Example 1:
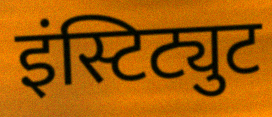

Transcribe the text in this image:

इंस्टिट्युट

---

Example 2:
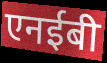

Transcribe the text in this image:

एनईबी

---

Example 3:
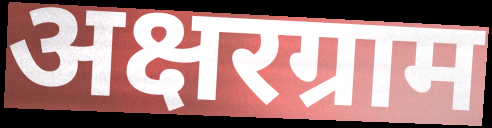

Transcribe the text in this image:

अक्षरग्राम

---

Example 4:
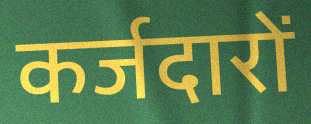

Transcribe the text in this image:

कर्जदारों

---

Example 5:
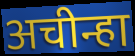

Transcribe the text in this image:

अचीन्हा